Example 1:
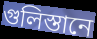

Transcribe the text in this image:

গুলিস্তানে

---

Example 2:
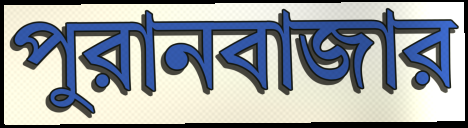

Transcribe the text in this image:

পুরানবাজার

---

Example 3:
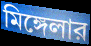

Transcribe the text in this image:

মিঙ্গেলার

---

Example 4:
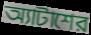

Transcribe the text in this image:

অ্যাটাশের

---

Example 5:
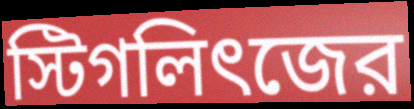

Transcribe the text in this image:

স্টিগলিৎজের